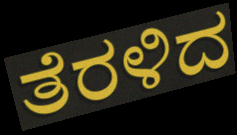
ತೆರಳಿದ